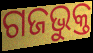
ଗଜଭୁକ୍ତ